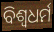
ବିଶ୍ବଧର୍ମ